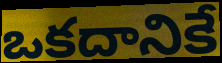
ఒకదానికే